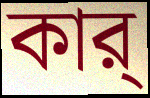
কার্